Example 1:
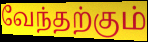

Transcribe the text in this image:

வேந்தற்கும்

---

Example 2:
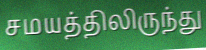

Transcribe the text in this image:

சமயத்திலிருந்து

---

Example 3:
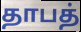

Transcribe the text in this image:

தாபத்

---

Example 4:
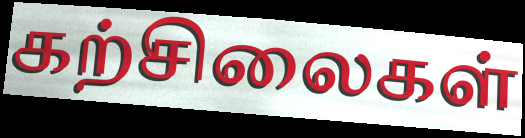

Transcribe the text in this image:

கற்சிலைகள்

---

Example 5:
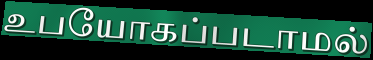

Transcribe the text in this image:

உபயோகப்படாமல்